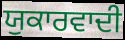
ਯੁਕਾਰਵਾਦੀ